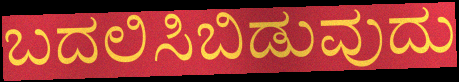
ಬದಲಿಸಿಬಿಡುವುದು